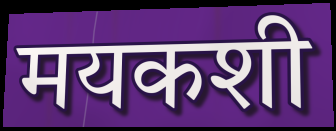
मयकशी